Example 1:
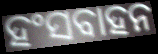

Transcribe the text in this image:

ହଂସବାହନ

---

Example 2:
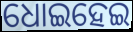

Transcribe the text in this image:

ଧୋଇହେଇ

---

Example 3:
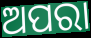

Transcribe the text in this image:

ଅପରା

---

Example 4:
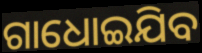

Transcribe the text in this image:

ଗାଧୋଇଯିବ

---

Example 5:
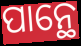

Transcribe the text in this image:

ପାନ୍ଥେ